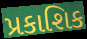
પ્રકાશિક